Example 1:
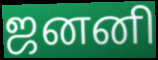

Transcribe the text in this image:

ஜனனி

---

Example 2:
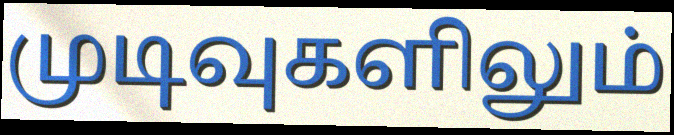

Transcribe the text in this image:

முடிவுகளிலும்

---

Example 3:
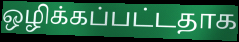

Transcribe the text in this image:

ஒழிக்கப்பட்டதாக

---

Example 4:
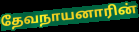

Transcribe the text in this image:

தேவநாயனாரின்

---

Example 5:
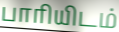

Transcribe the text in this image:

பாரியிடம்